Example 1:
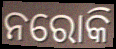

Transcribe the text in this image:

ନରୋକି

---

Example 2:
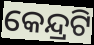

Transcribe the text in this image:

କେନ୍ଦ୍ରଟି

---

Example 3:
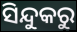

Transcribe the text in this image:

ସିନ୍ଦୁକରୁ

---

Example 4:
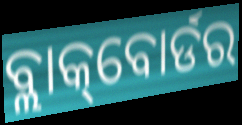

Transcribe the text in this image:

ବ୍ଲାକ୍‌ବୋର୍ଡର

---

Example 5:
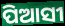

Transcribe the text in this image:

ପିଆସୀ